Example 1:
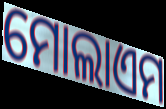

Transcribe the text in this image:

ମୋଲାଏମ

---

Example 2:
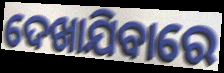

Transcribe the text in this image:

ଦେଖାଯିବାରେ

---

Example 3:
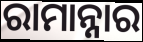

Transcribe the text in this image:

ରାମାନ୍ନାର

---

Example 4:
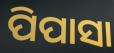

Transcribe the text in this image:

ପିପାସା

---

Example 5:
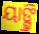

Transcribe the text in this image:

ୟାଙ୍ଗ୍ରି